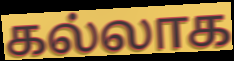
கல்லாக